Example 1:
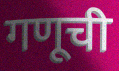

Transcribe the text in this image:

गणूची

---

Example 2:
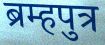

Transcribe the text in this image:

ब्रम्हपुत्र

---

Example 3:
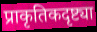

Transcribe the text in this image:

प्राकृतिकदृष्ट्या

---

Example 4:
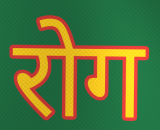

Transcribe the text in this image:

रोग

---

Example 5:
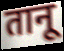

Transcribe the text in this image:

तानू